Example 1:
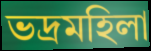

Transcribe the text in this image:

ভদ্রমহিলা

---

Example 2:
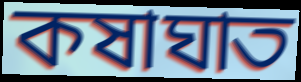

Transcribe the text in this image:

কষাঘাত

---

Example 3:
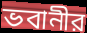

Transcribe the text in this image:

ভবানীর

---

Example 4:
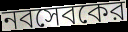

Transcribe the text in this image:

নবসেবকের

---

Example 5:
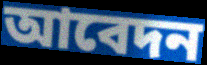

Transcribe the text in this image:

আবেদন